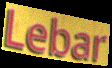
Lebar